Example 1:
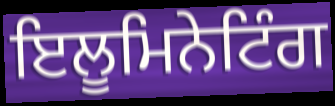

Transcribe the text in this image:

ਇਲੂਮਿਨੇਟਿੰਗ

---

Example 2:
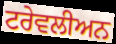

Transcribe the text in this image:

ਟਰੇਵਲੀਅਨ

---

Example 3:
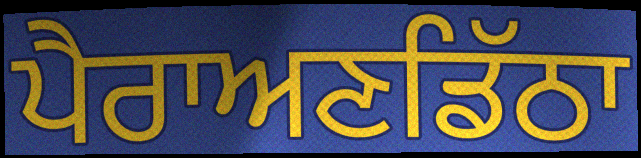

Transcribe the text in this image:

ਪੈਰਾਅਣਡਿੱਠਾ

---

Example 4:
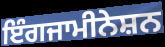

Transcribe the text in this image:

ਇੰਗਜਾਮੀਨੇਸ਼ਨ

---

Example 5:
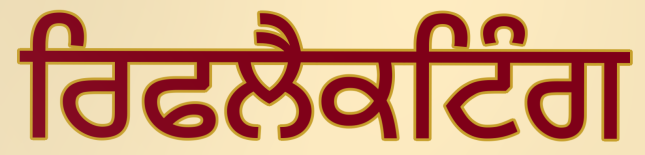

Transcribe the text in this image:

ਰਿਫਲੈਕਟਿੰਗ